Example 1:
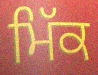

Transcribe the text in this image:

ਮਿੱਕ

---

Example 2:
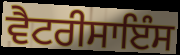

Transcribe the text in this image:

ਵੈਟਰੀਸਾਇੰਸ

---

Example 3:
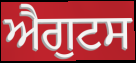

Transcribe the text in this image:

ਐਗੁਟਸ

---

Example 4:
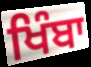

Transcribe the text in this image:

ਖਿੰਬਾ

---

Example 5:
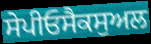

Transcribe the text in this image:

ਸੇਪੀਓਸੈਕਸੁਅਲ